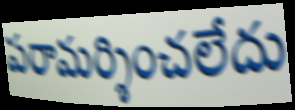
పరామర్శించలేదు